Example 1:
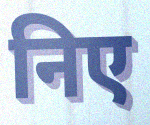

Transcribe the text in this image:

निए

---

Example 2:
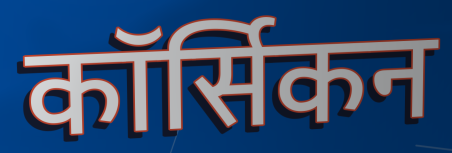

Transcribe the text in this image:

कॉर्सिकन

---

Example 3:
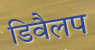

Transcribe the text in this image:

डिवैलप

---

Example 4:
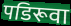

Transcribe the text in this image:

पडिरूवा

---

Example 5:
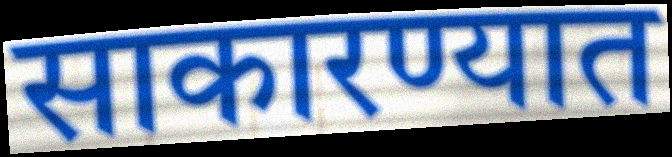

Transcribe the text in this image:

साकारण्यात